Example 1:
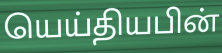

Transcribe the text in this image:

யெய்தியபின்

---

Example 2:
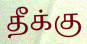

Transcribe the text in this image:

தீக்கு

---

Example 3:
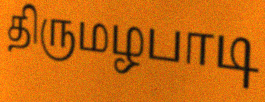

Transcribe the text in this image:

திருமழபாடி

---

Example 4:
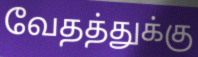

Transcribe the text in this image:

வேதத்துக்கு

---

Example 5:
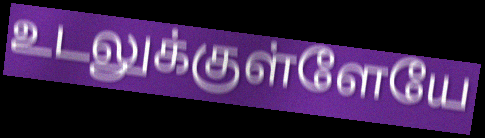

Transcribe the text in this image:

உடலுக்குள்ளேயே